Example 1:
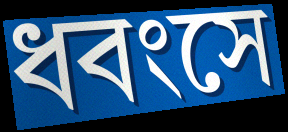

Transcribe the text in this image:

ধবংসে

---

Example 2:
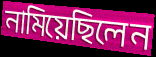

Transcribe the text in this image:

নামিয়েছিলেন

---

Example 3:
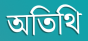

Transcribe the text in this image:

অতিথি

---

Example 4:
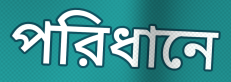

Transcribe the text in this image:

পরিধানে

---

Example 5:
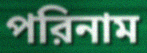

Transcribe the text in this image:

পরিনাম